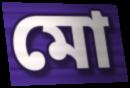
মো